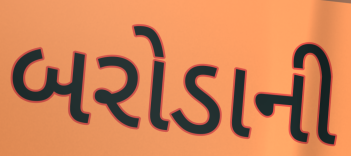
બરોડાની